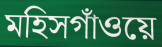
মহিসগাঁওয়ে